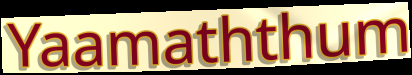
Yaamaththum